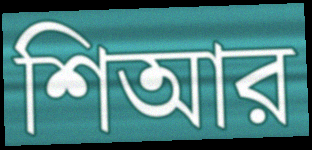
শিআর